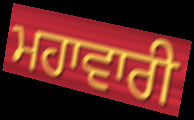
ਮਹਾਵਾਰੀ